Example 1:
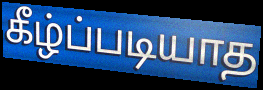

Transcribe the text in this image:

கீழ்ப்படியாத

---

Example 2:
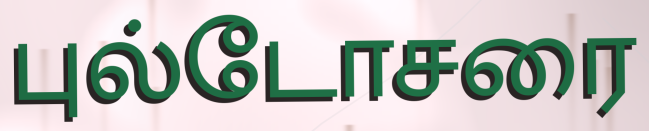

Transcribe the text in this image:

புல்டோசரை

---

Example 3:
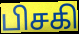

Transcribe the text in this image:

பிசகி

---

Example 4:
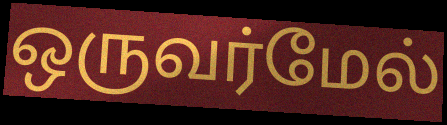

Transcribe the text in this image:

ஒருவர்மேல்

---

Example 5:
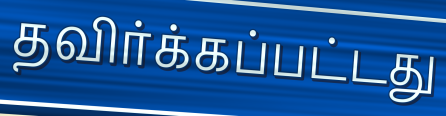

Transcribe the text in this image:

தவிர்க்கப்பட்டது